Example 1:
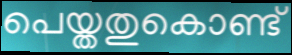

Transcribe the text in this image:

പെയ്തതുകൊണ്ട്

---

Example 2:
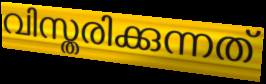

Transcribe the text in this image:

വിസ്തരിക്കുന്നത്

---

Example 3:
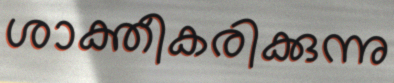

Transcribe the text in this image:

ശാക്തീകരിക്കുന്നു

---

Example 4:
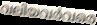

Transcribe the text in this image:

വലിയവർവരെ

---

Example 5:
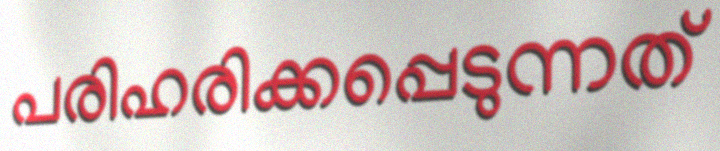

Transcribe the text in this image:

പരിഹരിക്കപ്പെടുന്നത്